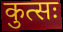
कुत्सः